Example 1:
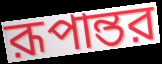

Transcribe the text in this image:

রূপান্তর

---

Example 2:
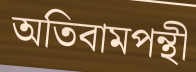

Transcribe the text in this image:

অতিবামপন্থী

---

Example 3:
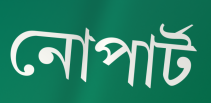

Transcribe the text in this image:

নোপার্ট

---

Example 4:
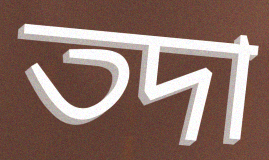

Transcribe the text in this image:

তদা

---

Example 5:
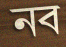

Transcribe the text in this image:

নব